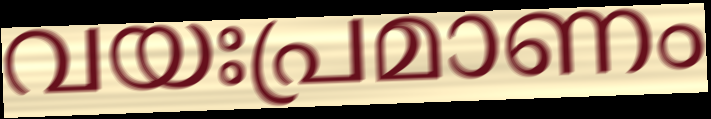
വയഃപ്രമാണം